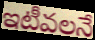
ఇటీవలనే